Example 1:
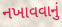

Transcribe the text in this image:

નખાવવાનું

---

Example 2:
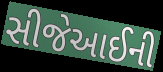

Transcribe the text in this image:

સીજેઆઈની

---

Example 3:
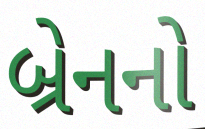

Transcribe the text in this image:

બ્રેનનો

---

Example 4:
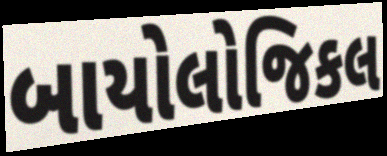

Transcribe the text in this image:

બાયોલોજિકલ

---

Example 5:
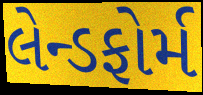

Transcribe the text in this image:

લેન્ડફોર્મ